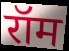
रॉम